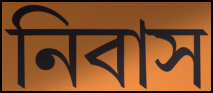
নিবাস